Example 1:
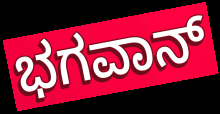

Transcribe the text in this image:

ಭಗವಾನ್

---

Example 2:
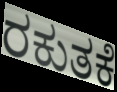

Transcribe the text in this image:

ರಕುತಕೆ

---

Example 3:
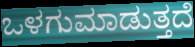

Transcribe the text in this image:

ಒಳಗುಮಾಡುತ್ತದೆ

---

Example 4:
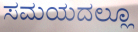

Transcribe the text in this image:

ಸಮಯದಲ್ಲೂ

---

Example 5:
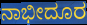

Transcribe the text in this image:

ನಾಭೀದೂರ